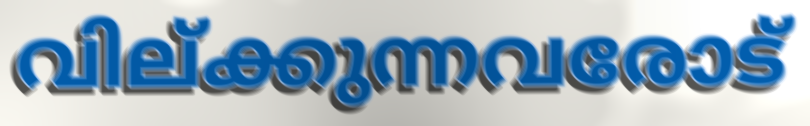
വില്ക്കുന്നവരോട്